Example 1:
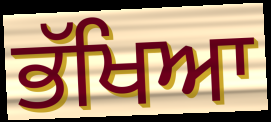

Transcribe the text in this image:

ਭੱਖਿਆ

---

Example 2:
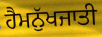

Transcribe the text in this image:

ਹੈਮਨੁੱਖਜਾਤੀ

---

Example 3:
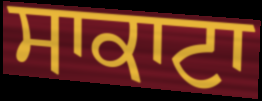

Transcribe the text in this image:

ਸਾਕਾਟਾ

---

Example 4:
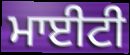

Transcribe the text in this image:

ਮਾਈਟੀ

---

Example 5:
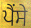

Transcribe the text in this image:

ਪੈਂਸੇ